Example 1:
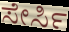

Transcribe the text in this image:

ಸೇರ್ಸಿ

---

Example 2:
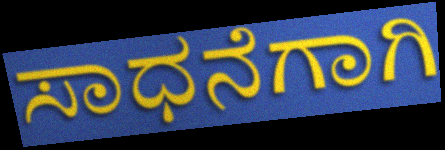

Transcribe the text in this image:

ಸಾಧನೆಗಾಗಿ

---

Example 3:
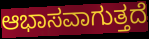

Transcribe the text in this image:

ಆಭಾಸವಾಗುತ್ತದೆ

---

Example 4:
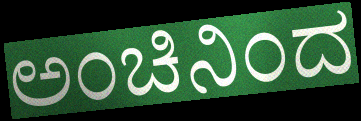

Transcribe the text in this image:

ಅಂಚಿನಿಂದ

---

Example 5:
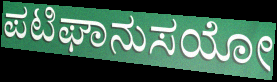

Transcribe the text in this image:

ಪಟಿಘಾನುಸಯೋ